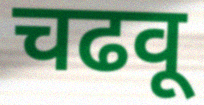
चढवू